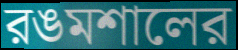
রঙমশালের